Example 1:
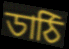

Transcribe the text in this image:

ডাঠি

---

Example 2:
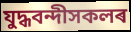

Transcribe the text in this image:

যুদ্ধবন্দীসকলৰ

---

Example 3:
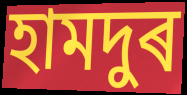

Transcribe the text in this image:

হামদুৰ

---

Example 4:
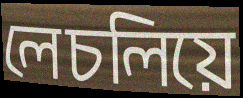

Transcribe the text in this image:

লেচলিয়ে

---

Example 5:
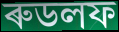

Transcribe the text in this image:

ৰুডলফ